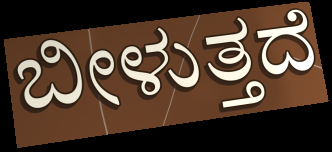
ಬೀಳುತ್ತದೆ